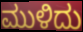
ಮುಳಿದು